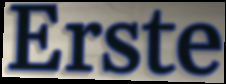
Erste